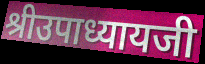
श्रीउपाध्यायजी